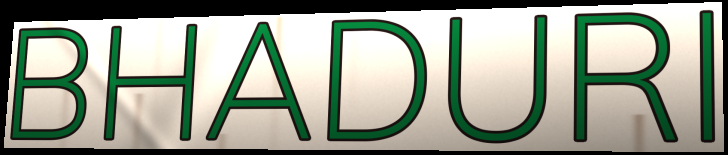
BHADURI